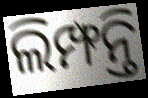
ଲିମ୍ଫନ୍ତି